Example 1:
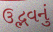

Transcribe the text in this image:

ઉદ્ભવનું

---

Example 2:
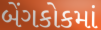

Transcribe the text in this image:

બેંગકોકમાં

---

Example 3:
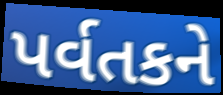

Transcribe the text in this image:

પર્વતકને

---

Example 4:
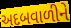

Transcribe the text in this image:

અદબવાળીને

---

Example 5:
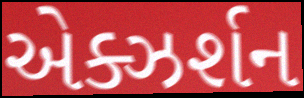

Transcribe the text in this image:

એક્ઝર્શન